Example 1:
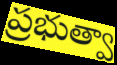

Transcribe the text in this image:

ప్రభుత్వా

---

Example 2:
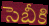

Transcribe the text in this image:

సెబీకి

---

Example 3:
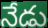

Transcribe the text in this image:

నేడు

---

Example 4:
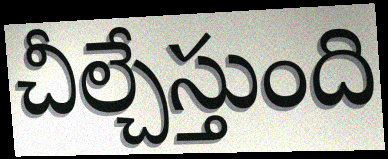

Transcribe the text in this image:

చీల్చేస్తుంది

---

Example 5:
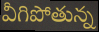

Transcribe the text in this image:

వీగిపోతున్న